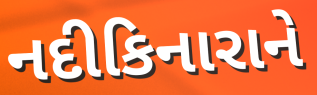
નદીકિનારાને